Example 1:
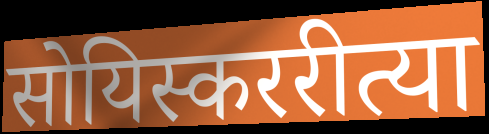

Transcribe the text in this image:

सोयिस्कररीत्या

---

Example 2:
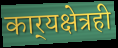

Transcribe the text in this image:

कार्यक्षेत्रही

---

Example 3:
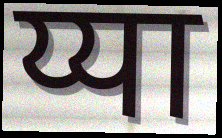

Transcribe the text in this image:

य्या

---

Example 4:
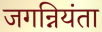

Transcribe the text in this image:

जगन्नियंता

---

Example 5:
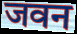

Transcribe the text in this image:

जवन